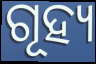
ଗୂହ୍ୟ